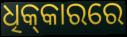
ଧିକ୍‌କାରରେ